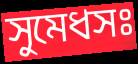
সুমেধসঃ